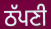
ਠੱਪਣੀ